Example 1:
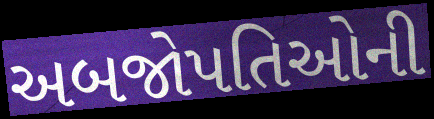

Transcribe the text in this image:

અબજોપતિઓની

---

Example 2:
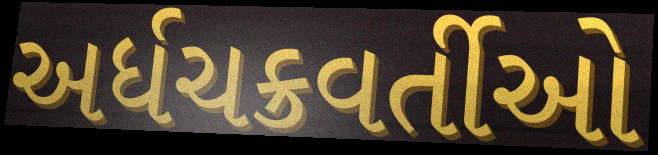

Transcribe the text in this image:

અર્ધચક્રવર્તીઓ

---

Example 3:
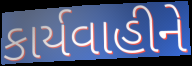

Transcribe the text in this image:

કાર્યવાહીને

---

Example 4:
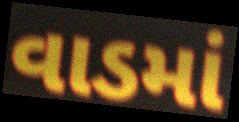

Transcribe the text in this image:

વાડમાં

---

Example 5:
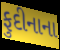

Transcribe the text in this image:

ફુદીનાના